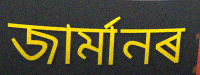
জাৰ্মানৰ